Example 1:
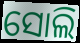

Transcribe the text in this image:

ସୋଲି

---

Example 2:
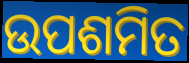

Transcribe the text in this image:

ଉପଶମିତ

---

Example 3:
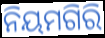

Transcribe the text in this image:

ନିୟମଗିରି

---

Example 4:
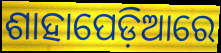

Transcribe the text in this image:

ଶାହାପେଡ଼ିଆରେ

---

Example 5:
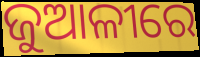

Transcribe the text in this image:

ଜୁଆଳୀରେ